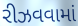
રીઝવવામાં